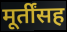
मूर्तींसह